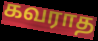
கவராத